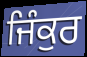
ਜਿੰਕੁਰ